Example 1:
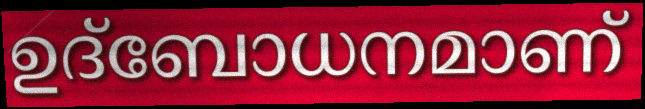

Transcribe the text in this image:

ഉദ്ബോധനമാണ്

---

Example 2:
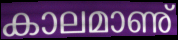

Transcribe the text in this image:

കാലമാണു്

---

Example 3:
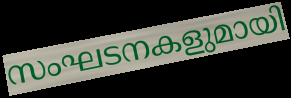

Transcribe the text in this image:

സംഘടനകളുമായി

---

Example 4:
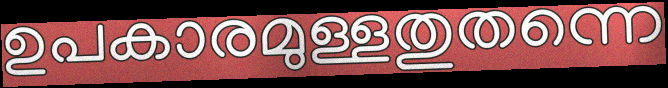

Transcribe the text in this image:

ഉപകാരമുള്ളതുതന്നെ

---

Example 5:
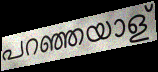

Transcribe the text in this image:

പറഞ്ഞയാള്